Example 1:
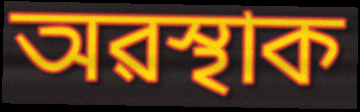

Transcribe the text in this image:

অৱস্থাক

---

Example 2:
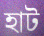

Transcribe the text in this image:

হাট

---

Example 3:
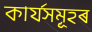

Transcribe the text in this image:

কাৰ্যসমূহৰ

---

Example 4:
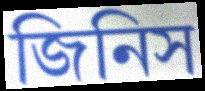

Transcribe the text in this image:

জিনিস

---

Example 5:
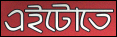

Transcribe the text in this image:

এইটোতে